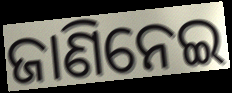
ଜାଣିନେଇ